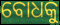
ବୋଧକୁ